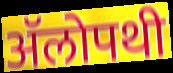
ॲॅलोपथी